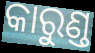
କାରୁଣ୍ଡ